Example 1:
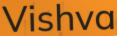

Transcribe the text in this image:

Vishva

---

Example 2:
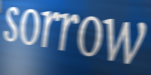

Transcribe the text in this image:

sorrow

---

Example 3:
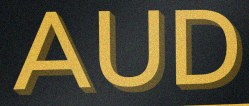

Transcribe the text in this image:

AUD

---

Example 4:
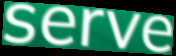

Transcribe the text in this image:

serve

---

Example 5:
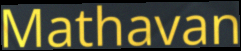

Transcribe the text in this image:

Mathavan